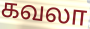
கவலா